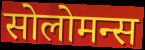
सोलोमन्स